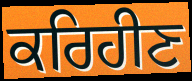
ਕਰਿਹੀਣ